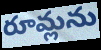
రూమ్లను